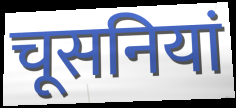
चूसनियां